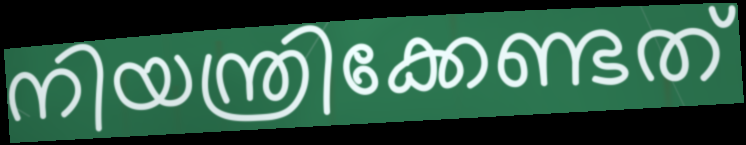
നിയന്ത്രിക്കേണ്ടത്